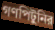
গণপিটুনির